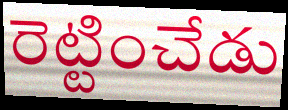
రెట్టించేడు